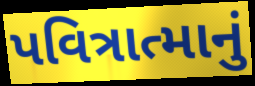
પવિત્રાત્માનું